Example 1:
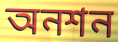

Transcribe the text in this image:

অনশন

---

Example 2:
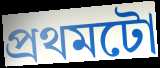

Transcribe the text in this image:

প্ৰথমটো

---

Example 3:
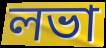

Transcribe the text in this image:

লভা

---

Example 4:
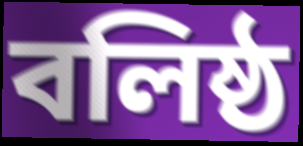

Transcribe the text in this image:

বলিষ্ঠ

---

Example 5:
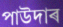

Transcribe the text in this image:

পাউদাৰ